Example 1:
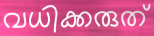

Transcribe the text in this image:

വധിക്കരുത്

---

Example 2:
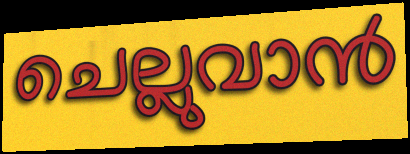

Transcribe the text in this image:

ചെല്ലുവാൻ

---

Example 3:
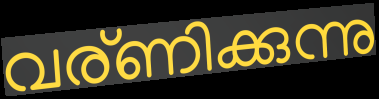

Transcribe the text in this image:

വര്ണിക്കുന്നു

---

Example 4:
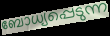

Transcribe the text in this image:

ബോധ്യപ്പെടുന്ന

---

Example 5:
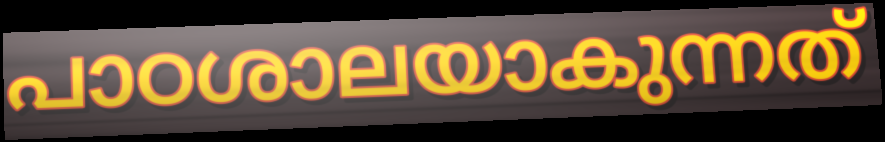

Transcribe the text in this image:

പാഠശാലയാകുന്നത്